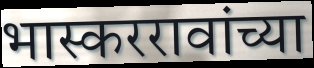
भास्कररावांच्या